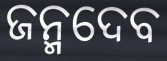
ଜନ୍ମଦେବ